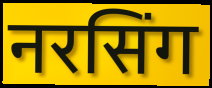
नरसिंग